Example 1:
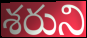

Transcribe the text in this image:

శరుని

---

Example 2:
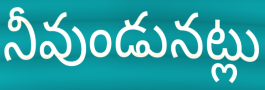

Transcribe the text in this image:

నీవుండునట్లు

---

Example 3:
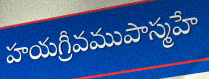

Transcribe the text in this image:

హయగ్రీవముపాస్మహే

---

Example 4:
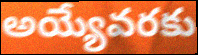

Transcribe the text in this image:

అయ్యేవరకు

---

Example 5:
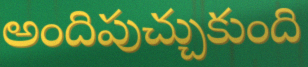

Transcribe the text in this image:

అందిపుచ్చుకుంది